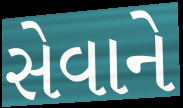
સેવાને